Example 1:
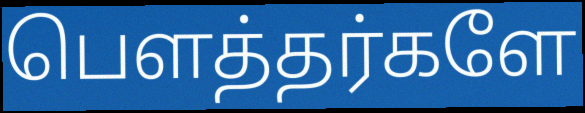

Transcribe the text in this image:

பௌத்தர்களே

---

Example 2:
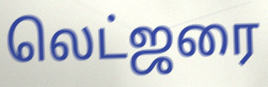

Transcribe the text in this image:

லெட்ஜரை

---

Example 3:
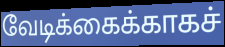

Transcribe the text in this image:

வேடிக்கைக்காகச்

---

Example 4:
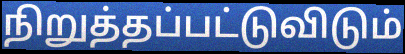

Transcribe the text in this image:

நிறுத்தப்பட்டுவிடும்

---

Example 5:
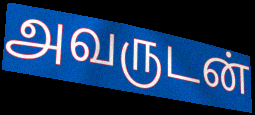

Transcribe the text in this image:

அவருடன்